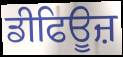
ਡੀਫਿਊਜ਼